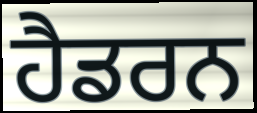
ਹੈਡਰਨ